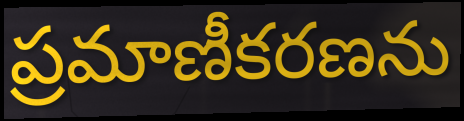
ప్రమాణీకరణను